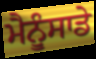
ਮੈਨੂੰਸਾਡੇ